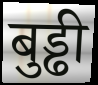
बुड्ढी